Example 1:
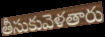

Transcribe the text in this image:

తీసుకువెళతారు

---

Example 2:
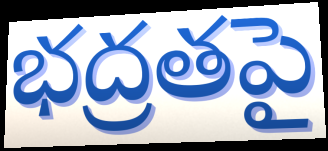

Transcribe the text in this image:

భద్రతపై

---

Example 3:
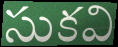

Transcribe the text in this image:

సుకవి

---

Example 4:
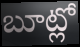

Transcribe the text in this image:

బూట్లో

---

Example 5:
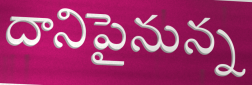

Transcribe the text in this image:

దానిపైనున్న